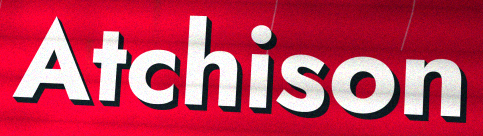
Atchison